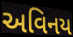
અવિનય